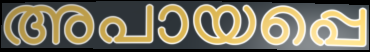
അപായപ്പെ